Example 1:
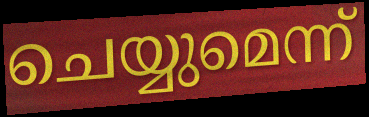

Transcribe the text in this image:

ചെയ്യുമെന്ന്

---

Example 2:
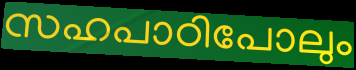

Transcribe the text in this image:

സഹപാഠിപോലും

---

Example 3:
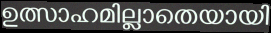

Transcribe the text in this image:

ഉത്സാഹമില്ലാതെയായി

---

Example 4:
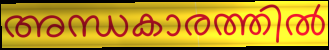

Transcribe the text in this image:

അന്ധകാരത്തിൽ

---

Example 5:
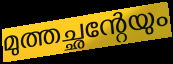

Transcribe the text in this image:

മുത്തച്ഛന്റേയും